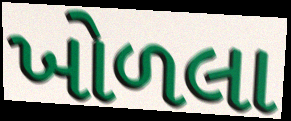
ખોળલા